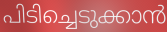
പിടിച്ചെടുക്കാൻ